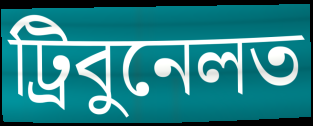
ট্ৰিবুনেলত